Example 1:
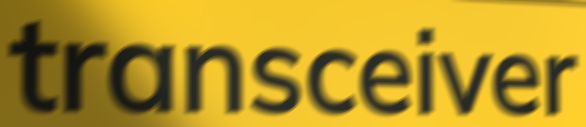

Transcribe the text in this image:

transceiver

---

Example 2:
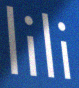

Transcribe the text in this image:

lili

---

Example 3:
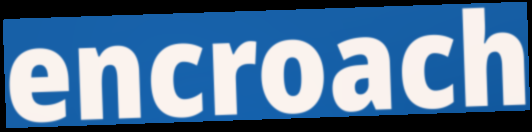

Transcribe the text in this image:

encroach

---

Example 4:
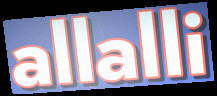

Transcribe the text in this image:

allalli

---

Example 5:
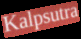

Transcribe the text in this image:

Kalpsutra